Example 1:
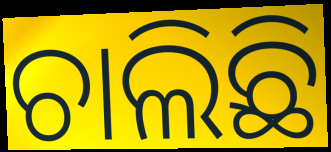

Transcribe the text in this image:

ଚାଲିଛି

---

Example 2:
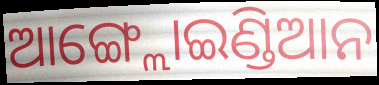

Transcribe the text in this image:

ଆଙ୍ଗ୍ଲୋଇଣ୍ଡିଆନ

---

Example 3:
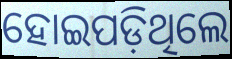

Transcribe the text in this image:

ହୋଇପଡ଼ିଥିଲେ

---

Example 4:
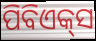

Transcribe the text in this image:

ପିବିଏକ୍‌ସ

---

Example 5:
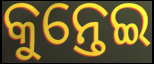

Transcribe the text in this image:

କୁନ୍ତେଇ